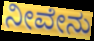
ನೀವೇನು